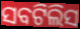
ସବଟିଲିସ